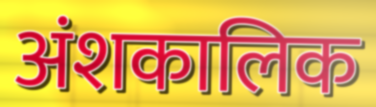
अंशकालिक